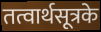
तत्वार्थसूत्रके